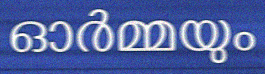
ഓർമ്മയും